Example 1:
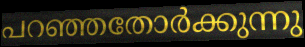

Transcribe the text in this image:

പറഞ്ഞതോർക്കുന്നു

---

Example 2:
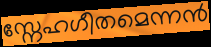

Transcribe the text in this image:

സ്നേഹഗീതമെന്നൻ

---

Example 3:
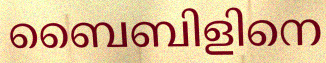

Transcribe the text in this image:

ബൈബിളിനെ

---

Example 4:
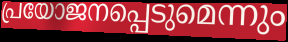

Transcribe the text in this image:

പ്രയോജനപ്പെടുമെന്നും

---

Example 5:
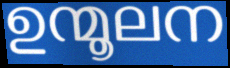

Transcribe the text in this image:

ഉന്മൂലന